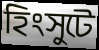
হিংসুটে